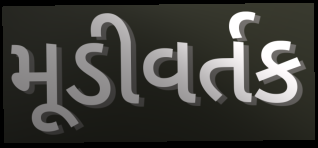
મૂડીવર્તક